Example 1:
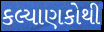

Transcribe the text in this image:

કલ્યાણકોથી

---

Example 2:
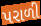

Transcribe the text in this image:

પરાળી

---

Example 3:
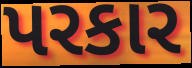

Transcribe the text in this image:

પરકાર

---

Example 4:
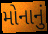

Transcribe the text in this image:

મોનાનું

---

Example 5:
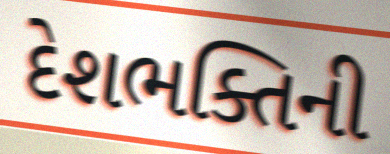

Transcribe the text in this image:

દેશભક્તિની